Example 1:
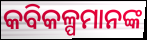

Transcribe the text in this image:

କବିକଳ୍ପମାନଙ୍କ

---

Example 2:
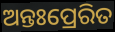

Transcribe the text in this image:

ଅନ୍ତଃପ୍ରେରିତ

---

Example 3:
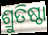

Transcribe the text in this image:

ଶ୍ରୁତିଷ୍ଠା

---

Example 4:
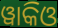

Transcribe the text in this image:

ୱାକିଓ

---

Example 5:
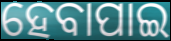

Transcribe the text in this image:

ହେବାପାଇ